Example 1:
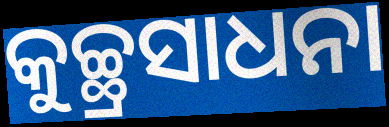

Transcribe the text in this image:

କୁଚ୍ଛ୍ରସାଧନା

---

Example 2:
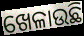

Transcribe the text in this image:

ଖେଳାଉଛି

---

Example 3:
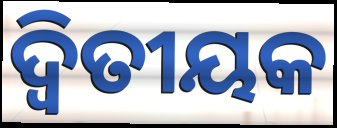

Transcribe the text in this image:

ଦ୍ୱିତୀୟକ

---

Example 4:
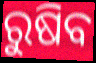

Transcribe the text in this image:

ରୁଷିବ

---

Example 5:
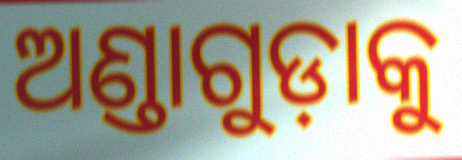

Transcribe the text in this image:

ଅଣ୍ଡାଗୁଡ଼ାକୁ